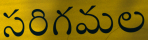
సరిగమల